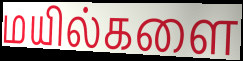
மயில்களை